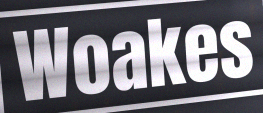
Woakes